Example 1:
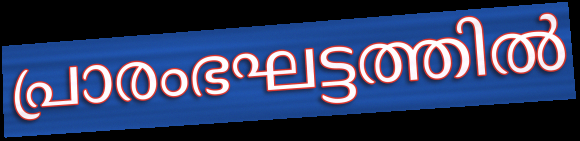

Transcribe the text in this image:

പ്രാരംഭഘട്ടത്തിൽ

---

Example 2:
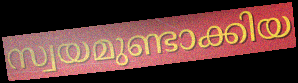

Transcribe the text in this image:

സ്വയമുണ്ടാക്കിയ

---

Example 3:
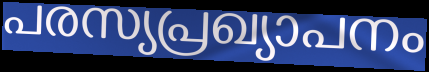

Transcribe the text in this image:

പരസ്യപ്രഖ്യാപനം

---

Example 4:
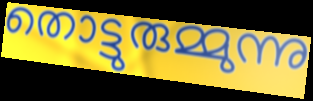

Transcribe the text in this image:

തൊട്ടുരുമ്മുന്നു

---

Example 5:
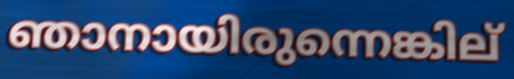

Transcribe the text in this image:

ഞാനായിരുന്നെങ്കില്